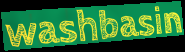
washbasin